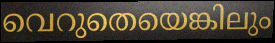
വെറുതെയെങ്കിലും